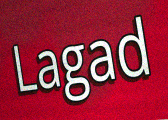
Lagad